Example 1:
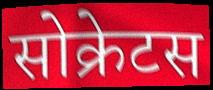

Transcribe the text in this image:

सोक्रेटस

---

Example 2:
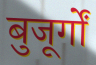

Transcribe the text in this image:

बुजूर्गों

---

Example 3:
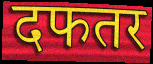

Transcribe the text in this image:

दफतर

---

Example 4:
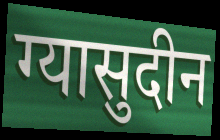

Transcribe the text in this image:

ग्यासुदीन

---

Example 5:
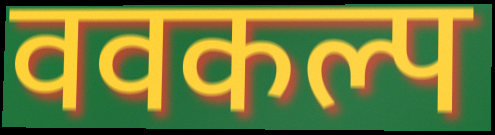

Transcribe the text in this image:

ववकल्प